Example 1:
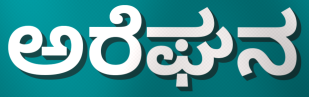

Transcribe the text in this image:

ಅರೆಘನ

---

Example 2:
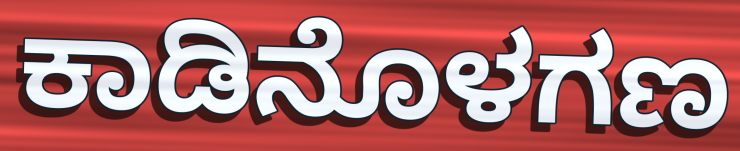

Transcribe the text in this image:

ಕಾಡಿನೊಳಗಣ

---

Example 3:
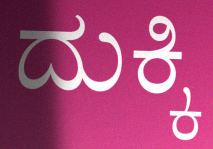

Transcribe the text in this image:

ದುಕ್ಕಿ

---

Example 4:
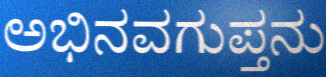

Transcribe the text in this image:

ಅಭಿನವಗುಪ್ತನು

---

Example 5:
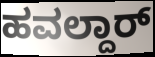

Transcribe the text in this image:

ಹವಲ್ದಾರ್